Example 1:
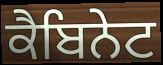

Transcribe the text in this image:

ਕੈਬਿਨੇਟ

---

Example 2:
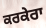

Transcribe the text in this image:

ਕਰਕੇਰਾ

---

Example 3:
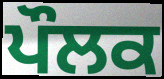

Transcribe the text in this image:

ਪੌਲਕ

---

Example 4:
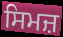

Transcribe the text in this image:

ਸਿਮਜ਼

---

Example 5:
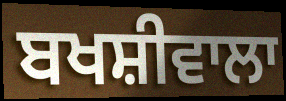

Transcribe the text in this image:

ਬਖਸ਼ੀਵਾਲਾ